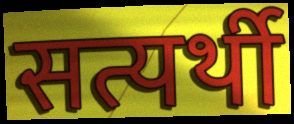
सत्यर्थी